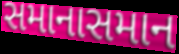
સમાનાસમાન